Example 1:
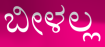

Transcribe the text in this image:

ಬೀಳಲ್ಲ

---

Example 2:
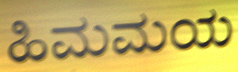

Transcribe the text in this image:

ಹಿಮಮಯ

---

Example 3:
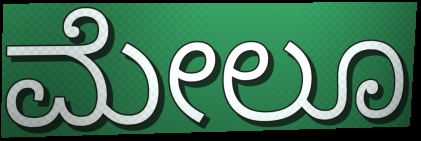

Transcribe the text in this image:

ಮೇಲೂ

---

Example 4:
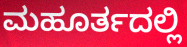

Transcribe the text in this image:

ಮಹೂರ್ತದಲ್ಲಿ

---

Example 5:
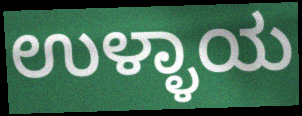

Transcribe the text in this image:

ಉಳ್ಳಾಯ